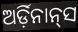
ଅର୍ଡ଼ିନାନ୍‌ସ